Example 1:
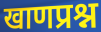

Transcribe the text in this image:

खाणप्रश्न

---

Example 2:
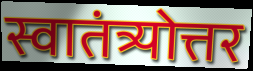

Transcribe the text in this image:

स्वातंत्र्योत्तर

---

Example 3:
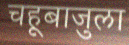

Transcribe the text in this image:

चहूबाजुला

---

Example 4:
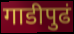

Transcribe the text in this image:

गाडीपुढं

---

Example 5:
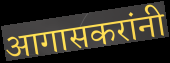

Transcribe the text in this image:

आगासकरांनी